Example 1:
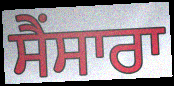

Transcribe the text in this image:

ਸੈਂਸਾਰਾ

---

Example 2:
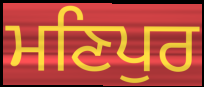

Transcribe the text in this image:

ਮਣਿਪੁਰ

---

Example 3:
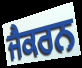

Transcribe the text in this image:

ਜੈਕਰਨ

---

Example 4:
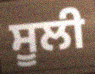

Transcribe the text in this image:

ਸੂਲੀ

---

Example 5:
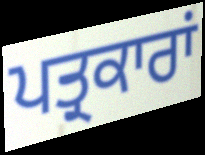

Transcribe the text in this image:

ਪਤ੍ਰਕਾਰਾਂ